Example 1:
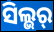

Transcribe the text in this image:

ସିଲ୍ଭର୍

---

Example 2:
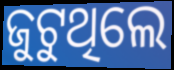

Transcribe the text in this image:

ଜୁଟୁଥିଲେ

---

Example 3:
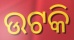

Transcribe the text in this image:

ଉଟକି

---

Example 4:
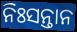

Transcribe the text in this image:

ନିଃସନ୍ତାନ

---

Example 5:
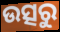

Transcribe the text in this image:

ଉତ୍ସରୁ